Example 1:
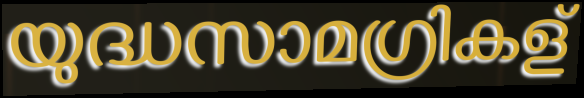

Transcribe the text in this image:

യുദ്ധസാമഗ്രികള്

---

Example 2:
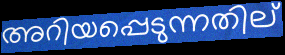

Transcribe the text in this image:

അറിയപ്പെടുന്നതില്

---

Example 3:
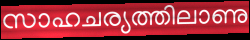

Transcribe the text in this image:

സാഹചര്യത്തിലാണു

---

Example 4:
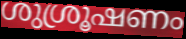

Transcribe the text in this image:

ശുശ്രൂഷണം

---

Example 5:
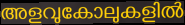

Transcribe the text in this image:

അളവുകോലുകളിൽ